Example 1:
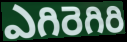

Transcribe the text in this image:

ఎగిరెగిరి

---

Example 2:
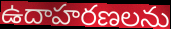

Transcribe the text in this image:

ఉదాహరణలను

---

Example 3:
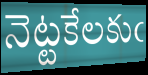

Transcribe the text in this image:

నెట్టకేలకుఁ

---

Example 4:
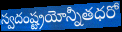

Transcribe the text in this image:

స్వదంష్ట్రయోన్నీతధరో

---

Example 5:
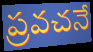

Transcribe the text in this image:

ప్రవచనే